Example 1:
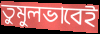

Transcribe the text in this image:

তুমুলভাবেই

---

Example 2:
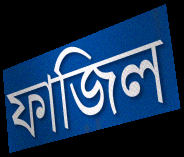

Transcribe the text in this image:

ফাজিল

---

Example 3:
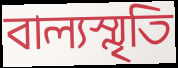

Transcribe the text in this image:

বাল্যস্মৃতি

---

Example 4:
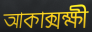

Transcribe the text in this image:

আকাক্সক্ষী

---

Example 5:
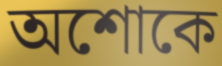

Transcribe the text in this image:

অশোকে